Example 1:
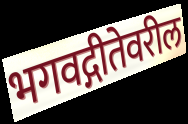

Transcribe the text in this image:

भगवद्गीतेवरील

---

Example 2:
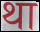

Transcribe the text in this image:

था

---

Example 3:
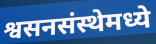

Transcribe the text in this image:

श्वसनसंस्थेमध्ये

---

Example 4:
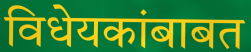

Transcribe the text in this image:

विधेयकांबाबत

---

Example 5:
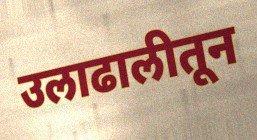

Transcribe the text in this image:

उलाढालीतून